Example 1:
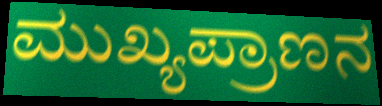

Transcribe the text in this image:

ಮುಖ್ಯಪ್ರಾಣನ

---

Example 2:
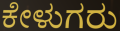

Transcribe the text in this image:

ಕೇಳುಗರು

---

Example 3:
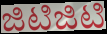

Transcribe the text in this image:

ಜಿಟಿಜಿಟಿ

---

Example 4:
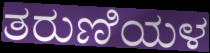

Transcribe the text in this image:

ತರುಣಿಯಳ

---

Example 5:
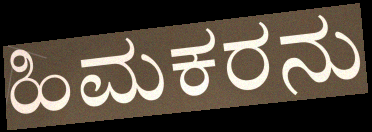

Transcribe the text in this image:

ಹಿಮಕರನು